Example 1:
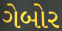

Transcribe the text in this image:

ગેબોર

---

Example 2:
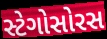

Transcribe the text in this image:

સ્ટેગોસોરસ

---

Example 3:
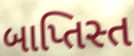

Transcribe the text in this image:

બાપ્તિસ્ત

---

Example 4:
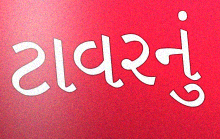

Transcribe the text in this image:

ટાવરનું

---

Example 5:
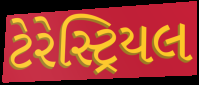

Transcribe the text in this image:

ટેરેસ્ટ્રિયલ